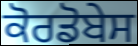
ਕੋਰਡੋਬੇਸ